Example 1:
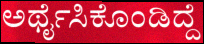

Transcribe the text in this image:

ಅರ್ಥೈಸಿಕೊಂಡಿದ್ದೆ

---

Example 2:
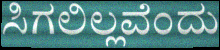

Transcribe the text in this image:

ಸಿಗಲಿಲ್ಲವೆಂದು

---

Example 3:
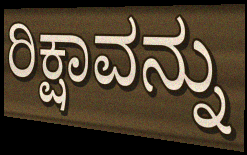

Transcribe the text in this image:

ರಿಕ್ಷಾವನ್ನು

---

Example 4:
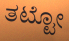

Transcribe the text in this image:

ತಟ್ಟೋ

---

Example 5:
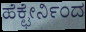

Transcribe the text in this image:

ಹೆಕ್ಟೇರ್ನಿಂದ